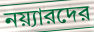
নয়্যারদের